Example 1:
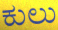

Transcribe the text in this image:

ಕುಲು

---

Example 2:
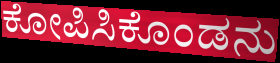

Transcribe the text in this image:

ಕೋಪಿಸಿಕೊಂಡನು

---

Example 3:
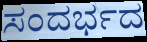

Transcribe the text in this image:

ಸಂದರ್ಭದ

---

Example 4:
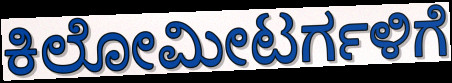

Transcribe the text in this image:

ಕಿಲೋಮೀಟರ್ಗಳಿಗೆ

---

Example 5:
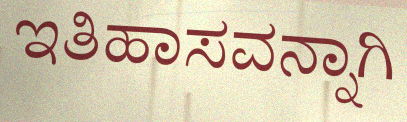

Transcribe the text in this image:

ಇತಿಹಾಸವನ್ನಾಗಿ